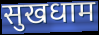
सुखधाम